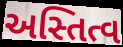
અસ્તિત્વ